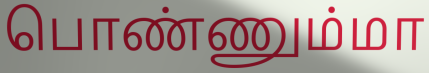
பொண்ணும்மா